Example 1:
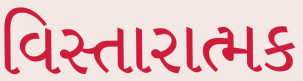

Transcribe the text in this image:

વિસ્તારાત્મક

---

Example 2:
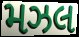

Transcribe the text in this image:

મઝલ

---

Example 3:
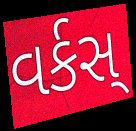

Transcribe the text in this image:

વર્કસ્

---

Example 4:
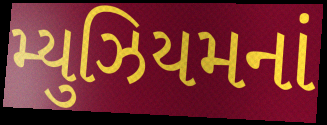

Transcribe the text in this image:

મ્યુઝિયમનાં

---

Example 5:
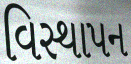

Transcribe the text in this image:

વિસ્થાપન